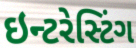
ઇન્ટરેસ્ટિંગ